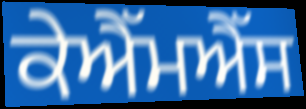
ਕੇਐੱਮਐੱਸ